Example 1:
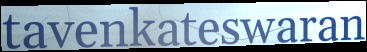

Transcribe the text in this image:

tavenkateswaran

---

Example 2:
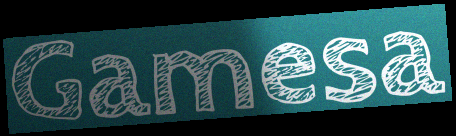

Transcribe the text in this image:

Gamesa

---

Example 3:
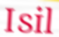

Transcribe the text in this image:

Isil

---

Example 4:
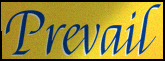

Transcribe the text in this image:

Prevail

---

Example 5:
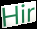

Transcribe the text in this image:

Hir